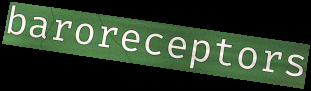
baroreceptors